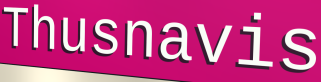
Thusnavis